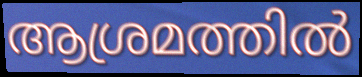
ആശ്രമത്തിൽ